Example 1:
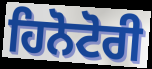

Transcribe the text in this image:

ਹਿਨੋਟੋਰੀ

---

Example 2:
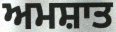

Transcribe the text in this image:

ਅਮਸ਼ਾਤ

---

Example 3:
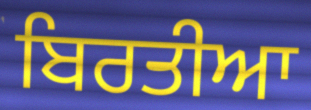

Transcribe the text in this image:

ਬਿਰਤੀਆ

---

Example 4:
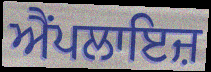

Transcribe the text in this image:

ਐਂਪਲਾਇਜ਼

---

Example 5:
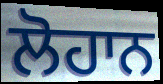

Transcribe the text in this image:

ਲੋਹਾਨ